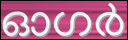
ഓഗർ